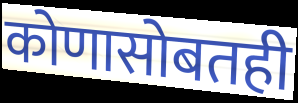
कोणासोबतही